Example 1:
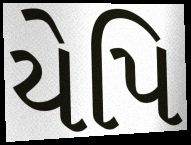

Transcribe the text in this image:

યેપિ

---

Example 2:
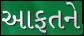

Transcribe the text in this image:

આફતને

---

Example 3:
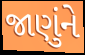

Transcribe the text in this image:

જાણુંને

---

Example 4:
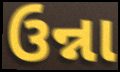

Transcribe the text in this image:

ઉન્ના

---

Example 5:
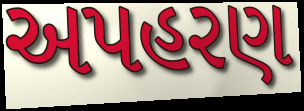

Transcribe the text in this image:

અપહરણ